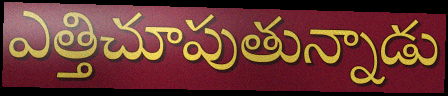
ఎత్తిచూపుతున్నాడు